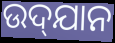
ଉଦ୍‌ଯାନ